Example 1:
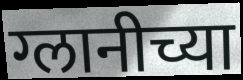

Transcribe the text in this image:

ग्लानीच्या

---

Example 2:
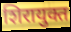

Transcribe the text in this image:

शिरायुक्त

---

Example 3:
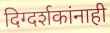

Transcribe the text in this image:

दिग्दर्शकांनाही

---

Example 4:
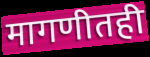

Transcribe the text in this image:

मागणीतही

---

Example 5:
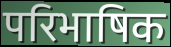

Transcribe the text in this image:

परिभाषिक